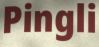
Pingli